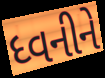
ધ્વનીને